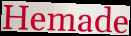
Hemade